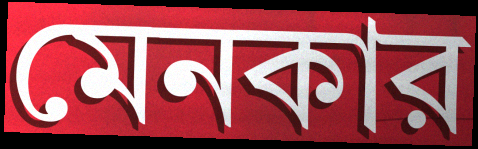
মেনকার